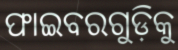
ଫାଇବରଗୁଡ଼ିକୁ